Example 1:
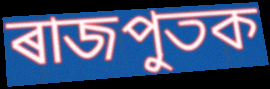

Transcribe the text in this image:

ৰাজপুতক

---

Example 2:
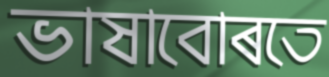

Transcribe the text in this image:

ভাষাবোৰতে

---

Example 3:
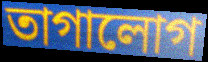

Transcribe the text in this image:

তাগালোগ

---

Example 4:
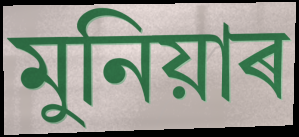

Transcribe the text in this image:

মুনিয়াৰ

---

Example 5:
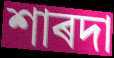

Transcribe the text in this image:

শাৰদা